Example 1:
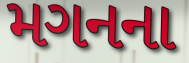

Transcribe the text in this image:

મગનના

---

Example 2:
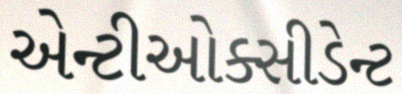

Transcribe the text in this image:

એન્ટીઓક્સીડેન્ટ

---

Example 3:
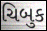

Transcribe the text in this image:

ચિબુક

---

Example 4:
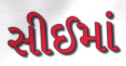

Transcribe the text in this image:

સીઈમાં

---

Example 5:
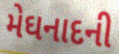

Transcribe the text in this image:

મેઘનાદની